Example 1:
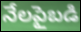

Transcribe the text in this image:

నేలపైబడి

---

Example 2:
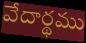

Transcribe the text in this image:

వేదార్థము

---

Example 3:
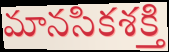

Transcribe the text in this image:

మానసికశక్తి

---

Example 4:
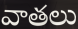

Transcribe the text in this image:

వాతలు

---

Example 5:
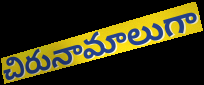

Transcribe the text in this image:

చిరునామాలుగా